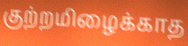
குற்றமிழைக்காத